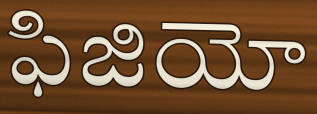
ఫిజియో